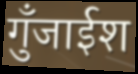
गुँजाईश